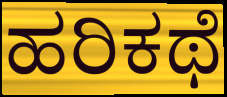
ಹರಿಕಥೆ